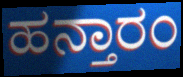
ಹನ್ತಾರಂ